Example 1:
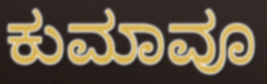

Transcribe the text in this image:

ಕುಮಾವೂ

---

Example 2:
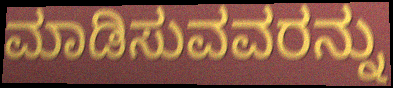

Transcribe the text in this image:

ಮಾಡಿಸುವವರನ್ನು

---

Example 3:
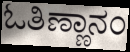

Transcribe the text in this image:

ಓತಿಣ್ಣಾನಂ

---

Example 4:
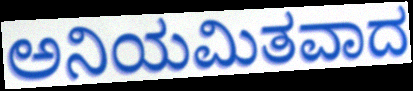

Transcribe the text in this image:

ಅನಿಯಮಿತವಾದ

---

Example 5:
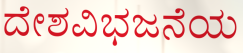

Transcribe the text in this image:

ದೇಶವಿಭಜನೆಯ